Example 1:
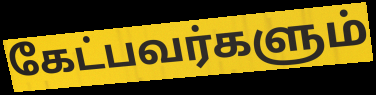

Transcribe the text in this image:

கேட்பவர்களும்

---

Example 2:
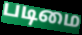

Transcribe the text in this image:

படிமை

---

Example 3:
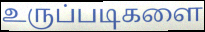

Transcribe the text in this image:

உருப்படிகளை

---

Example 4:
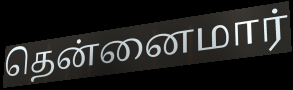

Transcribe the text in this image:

தென்னைமார்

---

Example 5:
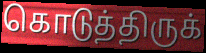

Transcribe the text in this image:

கொடுத்திருக்